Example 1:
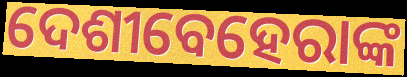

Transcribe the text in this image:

ଦେଶୀବେହେରାଙ୍କ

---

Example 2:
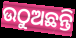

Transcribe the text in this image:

ଉଠୁଅଛନ୍ତି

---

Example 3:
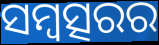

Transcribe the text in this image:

ସମ୍ବତ୍ସରର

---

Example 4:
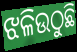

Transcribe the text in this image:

ଝଳିଉଠୁଛି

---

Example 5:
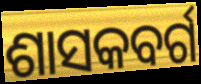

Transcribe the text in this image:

ଶାସକବର୍ଗ